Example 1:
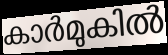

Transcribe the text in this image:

കാർമുകിൽ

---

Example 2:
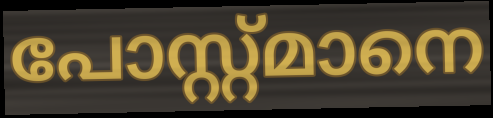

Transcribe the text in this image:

പോസ്റ്റ്മാനെ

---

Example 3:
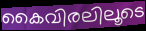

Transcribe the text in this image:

കൈവിരലിലൂടെ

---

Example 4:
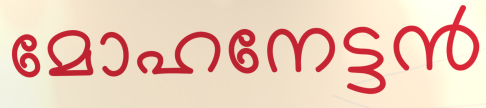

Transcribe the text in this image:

മോഹനേട്ടൻ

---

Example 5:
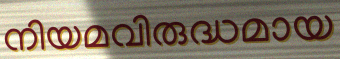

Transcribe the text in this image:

നിയമവിരുദ്ധമായ